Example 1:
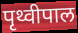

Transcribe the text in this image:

पृथ्वीपाल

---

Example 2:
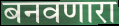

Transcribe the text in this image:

बनवणारा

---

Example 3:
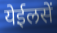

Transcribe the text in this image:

येईलसें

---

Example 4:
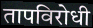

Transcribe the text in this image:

तापविरोधी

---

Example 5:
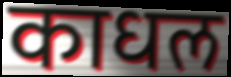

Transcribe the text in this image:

काधल